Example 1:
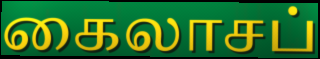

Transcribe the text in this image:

கைலாசப்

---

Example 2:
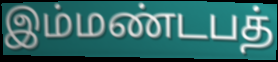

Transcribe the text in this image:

இம்மண்டபத்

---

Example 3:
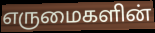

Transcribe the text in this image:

எருமைகளின்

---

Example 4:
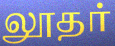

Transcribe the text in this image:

லூதர்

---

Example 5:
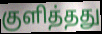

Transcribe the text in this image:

குளித்தது